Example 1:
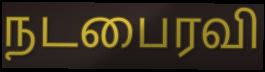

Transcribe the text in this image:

நடபைரவி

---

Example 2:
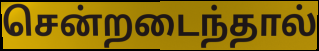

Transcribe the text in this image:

சென்றடைந்தால்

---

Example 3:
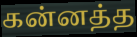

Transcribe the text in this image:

கன்னத்த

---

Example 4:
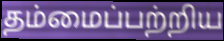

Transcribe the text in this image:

தம்மைப்பற்றிய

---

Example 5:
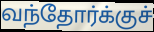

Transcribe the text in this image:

வந்தோர்க்குச்